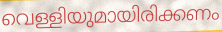
വെള്ളിയുമായിരിക്കണം